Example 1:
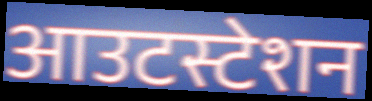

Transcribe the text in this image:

आउटस्टेशन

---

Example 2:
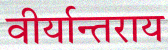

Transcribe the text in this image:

वीर्यान्तराय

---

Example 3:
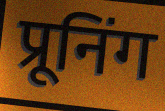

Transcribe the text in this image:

प्रूनिंग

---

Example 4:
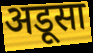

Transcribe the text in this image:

अडूसा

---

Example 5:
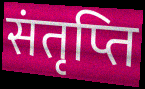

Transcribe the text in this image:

संतृप्ति